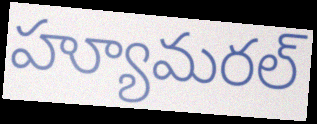
హ్యూమరల్